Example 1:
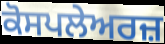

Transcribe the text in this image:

ਕੋਸਪਲੇਅਰਜ਼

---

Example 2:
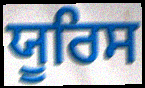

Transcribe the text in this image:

ਯੂਰਿਸ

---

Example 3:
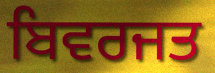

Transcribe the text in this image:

ਬਿਵਰਜਤ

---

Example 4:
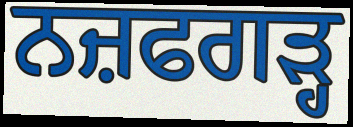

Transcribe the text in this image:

ਨਜ਼ਫਗੜ੍ਹ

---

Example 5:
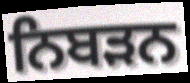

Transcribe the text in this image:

ਨਿਬੜਨ